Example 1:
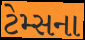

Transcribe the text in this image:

ટેમ્સના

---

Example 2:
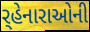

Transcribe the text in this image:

ર્‌હેનારાઓની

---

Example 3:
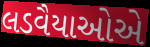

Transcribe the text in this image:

લડવૈયાઓએ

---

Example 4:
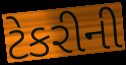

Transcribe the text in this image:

ટેકરીની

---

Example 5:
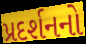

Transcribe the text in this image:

પ્રદર્શનનો